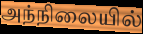
அந்நிலையில்